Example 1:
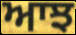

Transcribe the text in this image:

ਆਝ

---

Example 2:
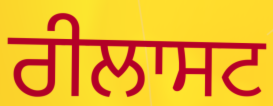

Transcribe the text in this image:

ਰੀਲਾਸਟ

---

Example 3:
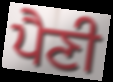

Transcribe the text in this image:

ਪੈਣੀ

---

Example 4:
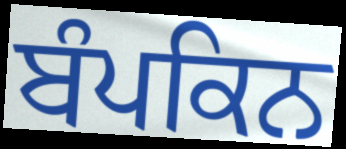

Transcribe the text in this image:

ਬੰਪਕਿਨ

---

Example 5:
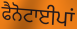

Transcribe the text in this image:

ਫੈਨੋਟਾਈਪਾਂ